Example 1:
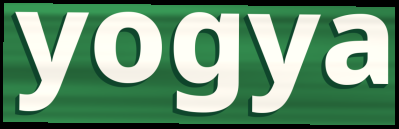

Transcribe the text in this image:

yogya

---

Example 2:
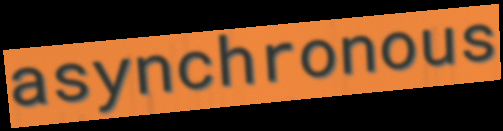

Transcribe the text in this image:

asynchronous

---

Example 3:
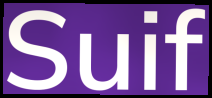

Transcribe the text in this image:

Suif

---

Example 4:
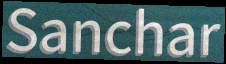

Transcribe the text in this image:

Sanchar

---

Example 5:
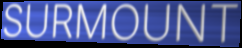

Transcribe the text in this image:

SURMOUNT